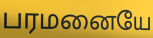
பரமனையே